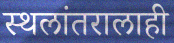
स्थलांतरालाही